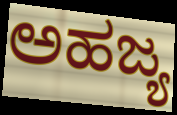
ಅಹಜ್ಯ